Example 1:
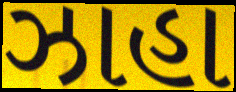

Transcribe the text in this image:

ઝાહા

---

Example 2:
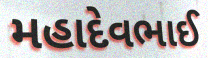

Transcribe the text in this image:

મહાદેવભાઈ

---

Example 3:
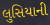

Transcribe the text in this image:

લુસિયાની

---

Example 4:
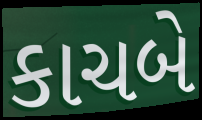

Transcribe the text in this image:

કાચબે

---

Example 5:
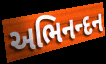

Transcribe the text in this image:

અભિનન્દન